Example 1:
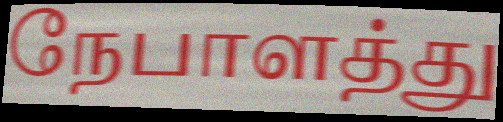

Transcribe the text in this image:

நேபாளத்து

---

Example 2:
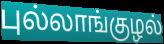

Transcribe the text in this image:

புல்லாங்குழல்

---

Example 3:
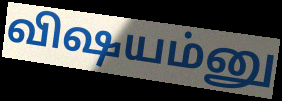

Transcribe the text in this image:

விஷயம்னு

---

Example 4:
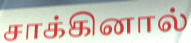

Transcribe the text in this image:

சாக்கினால்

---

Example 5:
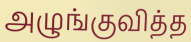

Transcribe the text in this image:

அழுங்குவித்த